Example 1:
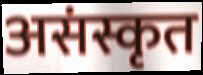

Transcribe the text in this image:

असंस्कृत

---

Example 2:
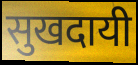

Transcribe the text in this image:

सुखदायी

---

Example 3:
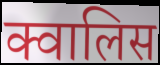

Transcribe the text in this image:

क्वालिस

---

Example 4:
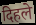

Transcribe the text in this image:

दिहले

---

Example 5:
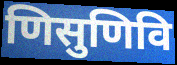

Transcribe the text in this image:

णिसुणिवि